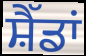
ਸ਼ੈੱਡਾਂ